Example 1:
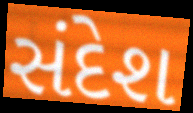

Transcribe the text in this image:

સંદેશ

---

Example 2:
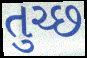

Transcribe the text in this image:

તુચ્છ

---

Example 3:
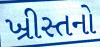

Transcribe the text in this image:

ખ્રીસ્તનો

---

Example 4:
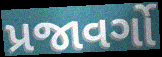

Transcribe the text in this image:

પ્રજાવર્ગો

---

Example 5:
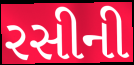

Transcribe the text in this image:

રસીની